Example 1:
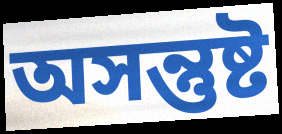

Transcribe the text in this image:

অসন্তুষ্ট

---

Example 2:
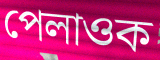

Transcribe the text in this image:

পেলাওক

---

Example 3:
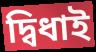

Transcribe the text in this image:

দ্বিধাই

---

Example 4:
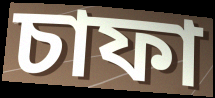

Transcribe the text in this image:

চাফা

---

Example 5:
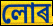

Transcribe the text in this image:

লোৰ